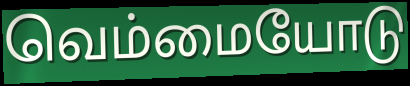
வெம்மையோடு